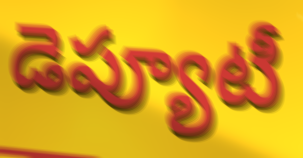
డెప్యూటీ